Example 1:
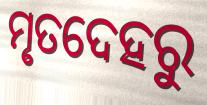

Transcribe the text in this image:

ମୃତଦେହରୁ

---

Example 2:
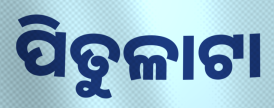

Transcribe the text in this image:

ପିତୁଳାଟା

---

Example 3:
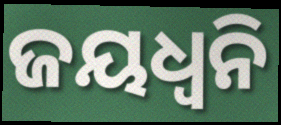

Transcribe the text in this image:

ଜୟଧ୍ଵନି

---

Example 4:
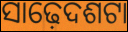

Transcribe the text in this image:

ସାଢ଼େଦଶଟା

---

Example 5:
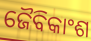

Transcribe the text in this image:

ଜୈବିକାଂଶ